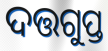
ଦତ୍ତଗୁପ୍ତ